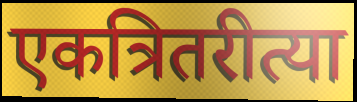
एकत्रितरीत्या